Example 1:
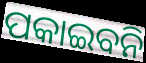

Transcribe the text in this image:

ପକାଇବନି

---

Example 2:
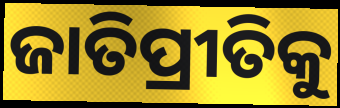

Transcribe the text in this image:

ଜାତିପ୍ରୀତିକୁ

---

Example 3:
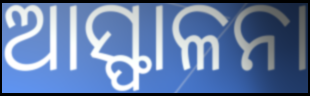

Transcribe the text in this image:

ଆସ୍ଫାଳନା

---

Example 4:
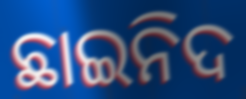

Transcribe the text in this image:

ଛାଇନିଦ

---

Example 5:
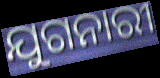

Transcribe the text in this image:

ଯୁଗନାରୀ